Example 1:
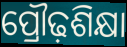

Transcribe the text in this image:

ପ୍ରୌଢ଼ଶିକ୍ଷା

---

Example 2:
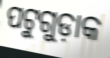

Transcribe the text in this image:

ପଟୁଗୁଡ଼ାକ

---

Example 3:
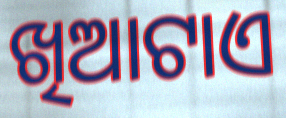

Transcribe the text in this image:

ଖିଆଟାଏ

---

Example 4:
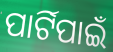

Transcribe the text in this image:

ପାର୍ଟିପାଇଁ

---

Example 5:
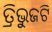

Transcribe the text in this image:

ତ୍ରିଭୁଜଟି